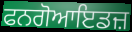
ਫਨਗੋਆਇਡਜ਼